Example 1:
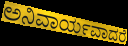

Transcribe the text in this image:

ಅನಿವಾರ್ಯವಾದರೆ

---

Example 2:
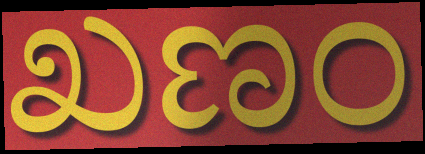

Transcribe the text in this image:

ಖಣಂ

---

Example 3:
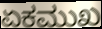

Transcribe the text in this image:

ಏಕಮುಖ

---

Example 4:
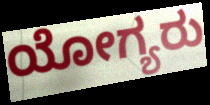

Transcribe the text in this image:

ಯೋಗ್ಯರು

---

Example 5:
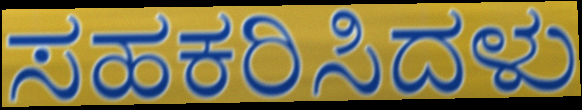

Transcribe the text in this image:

ಸಹಕರಿಸಿದಳು